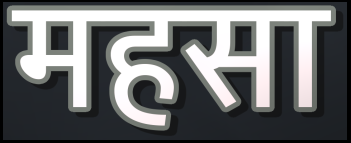
महसा